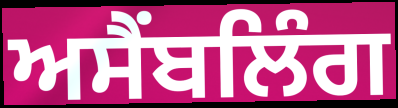
ਅਸੈਂਬਲਿੰਗ